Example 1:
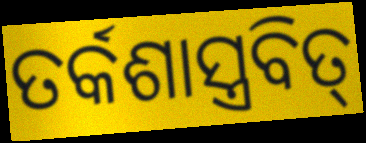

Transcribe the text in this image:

ତର୍କଶାସ୍ତ୍ରବିତ୍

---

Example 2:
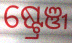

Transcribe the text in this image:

ଷ୍ଟ୍ରେଞ୍ଜ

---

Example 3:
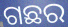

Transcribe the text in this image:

ଗଛର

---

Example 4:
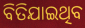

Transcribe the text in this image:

ବିତିଯାଇଥିବ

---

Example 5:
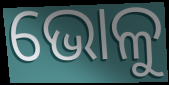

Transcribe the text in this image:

ଭୋଳୁ